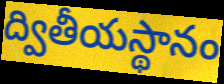
ద్వితీయస్థానం